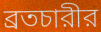
ব্রতচারীর